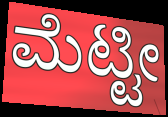
ಮೆಟ್ಟೀ